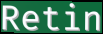
Retin